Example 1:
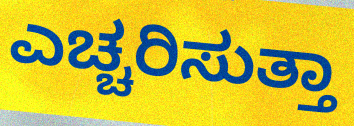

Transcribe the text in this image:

ಎಚ್ಚರಿಸುತ್ತಾ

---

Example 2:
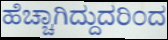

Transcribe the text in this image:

ಹೆಚ್ಚಾಗಿದ್ದುದರಿಂದ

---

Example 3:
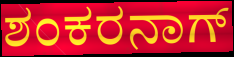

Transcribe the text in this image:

ಶಂಕರನಾಗ್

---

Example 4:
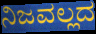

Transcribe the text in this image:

ನಿಜವಲ್ಲದ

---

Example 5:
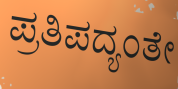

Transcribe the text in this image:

ಪ್ರತಿಪದ್ಯಂತೇ